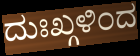
ದುಃಖ್ಗಳಿಂದ